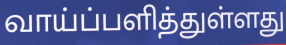
வாய்ப்பளித்துள்ளது